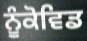
ਨੂੰਕੋਵਿਡ